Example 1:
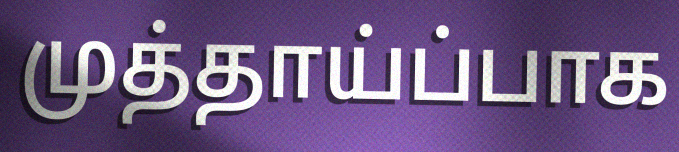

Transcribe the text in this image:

முத்தாய்ப்பாக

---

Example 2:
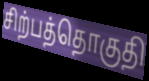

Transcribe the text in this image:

சிற்பத்தொகுதி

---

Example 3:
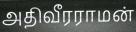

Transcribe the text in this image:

அதிவீரராமன்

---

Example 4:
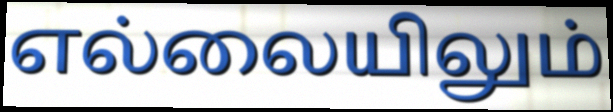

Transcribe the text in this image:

எல்லையிலும்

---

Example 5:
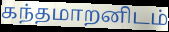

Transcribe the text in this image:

கந்தமாறனிடம்